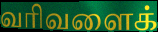
வரிவளைக்